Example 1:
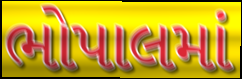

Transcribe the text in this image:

ભોપાલમાં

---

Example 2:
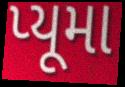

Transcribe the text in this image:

પ્યૂમા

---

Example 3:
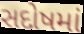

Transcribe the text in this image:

સદોષમાં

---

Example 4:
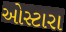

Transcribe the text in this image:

ઓસ્ટારા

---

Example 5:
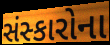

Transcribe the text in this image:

સંસ્કારોના